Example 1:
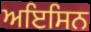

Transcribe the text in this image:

ਅਇਸਿਨ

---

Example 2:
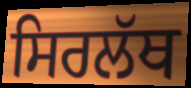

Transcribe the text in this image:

ਸਿਰਲੱਥ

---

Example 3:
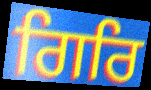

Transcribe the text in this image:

ਗਿਰਿ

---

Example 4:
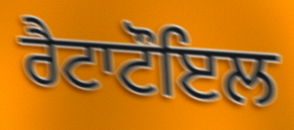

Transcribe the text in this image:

ਰੈਟਾਟੌਇਲ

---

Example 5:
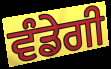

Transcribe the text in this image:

ਵੰਡੇਗੀ